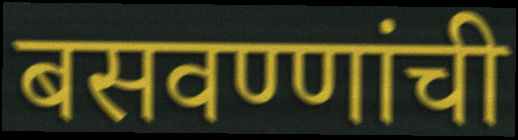
बसवण्णांची